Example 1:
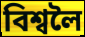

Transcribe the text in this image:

বিশ্বলৈ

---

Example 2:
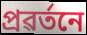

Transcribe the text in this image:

প্ৰৱৰ্তনে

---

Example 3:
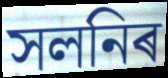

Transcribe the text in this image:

সলনিৰ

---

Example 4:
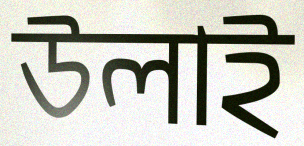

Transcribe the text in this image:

উলাই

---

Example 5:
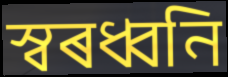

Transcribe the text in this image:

স্বৰধ্বনি